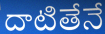
దాటితేనే